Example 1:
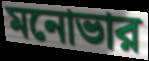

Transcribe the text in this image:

মনোভার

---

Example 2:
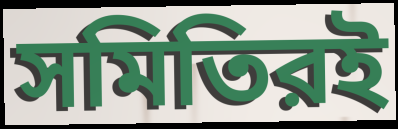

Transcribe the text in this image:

সমিতিরই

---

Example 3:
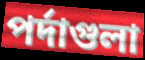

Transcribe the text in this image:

পর্দাগুলা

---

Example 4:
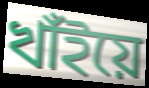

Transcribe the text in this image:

খাঁইয়ে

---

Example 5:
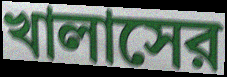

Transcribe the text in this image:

খালাসের